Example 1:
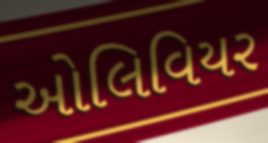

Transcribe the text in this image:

ઓલિવિયર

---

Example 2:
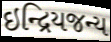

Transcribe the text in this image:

ઇન્દ્રિયજન્ય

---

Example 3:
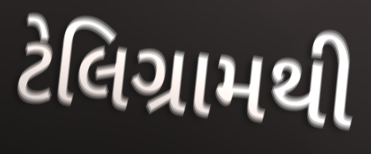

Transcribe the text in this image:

ટેલિગ્રામથી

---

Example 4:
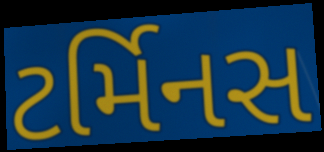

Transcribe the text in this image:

ટર્મિનસ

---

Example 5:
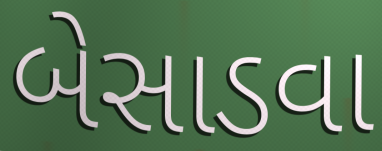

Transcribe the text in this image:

બેસાડવા